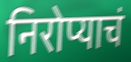
निरोप्याचं